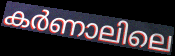
കർണാലിലെ